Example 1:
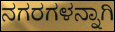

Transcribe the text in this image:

ನಗರಗಳನ್ನಾಗಿ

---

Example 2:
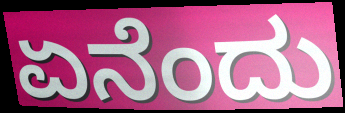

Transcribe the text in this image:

ಏನೆಂದು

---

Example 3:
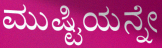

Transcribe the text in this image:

ಮುಷ್ಟಿಯನ್ನೇ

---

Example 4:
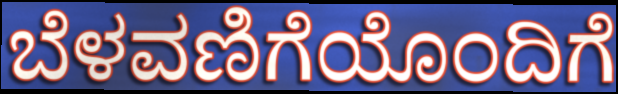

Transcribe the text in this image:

ಬೆಳವಣಿಗೆಯೊಂದಿಗೆ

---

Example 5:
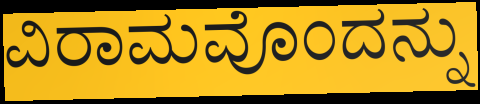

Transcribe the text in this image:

ವಿರಾಮವೊಂದನ್ನು